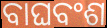
ବାଘବଂଶ